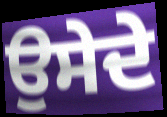
ਉਸੇਦੇ